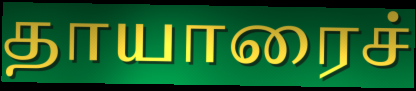
தாயாரைச்